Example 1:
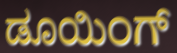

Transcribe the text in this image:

ಡೂಯಿಂಗ್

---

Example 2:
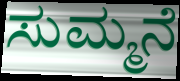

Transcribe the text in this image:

ಸುಮ್ಮನೆ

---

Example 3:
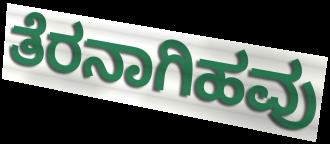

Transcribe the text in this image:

ತೆರನಾಗಿಹವು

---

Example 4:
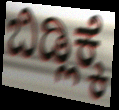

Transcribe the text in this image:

ಬಿಡ್ಲಿಕ್ಕೆ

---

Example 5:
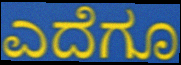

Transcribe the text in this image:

ಎದೆಗೂ